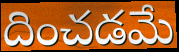
దించడమే